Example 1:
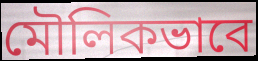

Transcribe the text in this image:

মৌলিকভাবে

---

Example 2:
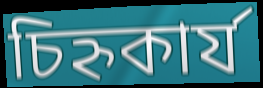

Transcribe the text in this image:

চিহ্নকার্য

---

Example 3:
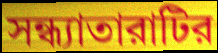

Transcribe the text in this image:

সন্ধ্যাতারাটির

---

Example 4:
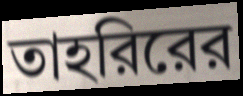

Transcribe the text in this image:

তাহরিরের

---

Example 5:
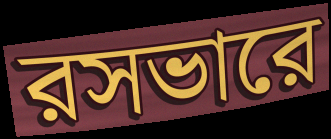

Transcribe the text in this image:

রসভারে